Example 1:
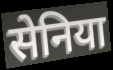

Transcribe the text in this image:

सेनिया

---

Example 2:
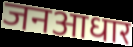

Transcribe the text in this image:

जनआधार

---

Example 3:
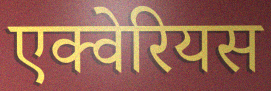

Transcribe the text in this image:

एक्वेरियस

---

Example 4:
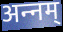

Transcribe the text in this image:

अन्नम्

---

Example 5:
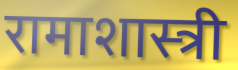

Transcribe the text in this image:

रामाशास्त्री